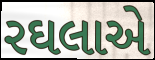
રઘલાએ